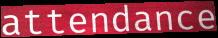
attendance